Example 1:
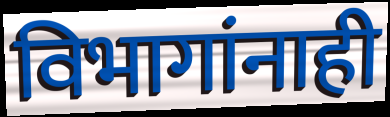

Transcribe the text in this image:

विभागांनाही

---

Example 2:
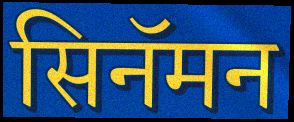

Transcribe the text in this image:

सिनॅमन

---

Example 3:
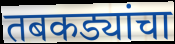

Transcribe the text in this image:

तबकड्यांचा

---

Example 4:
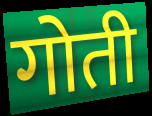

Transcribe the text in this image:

गोती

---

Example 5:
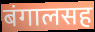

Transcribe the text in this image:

बंगालसह